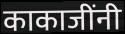
काकाजींनी